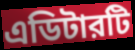
এডিটারটি